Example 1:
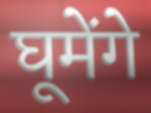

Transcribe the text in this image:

घूमेंगे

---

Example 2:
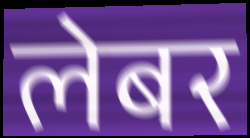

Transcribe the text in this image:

लेबर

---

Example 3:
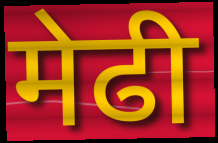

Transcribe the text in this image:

मेढी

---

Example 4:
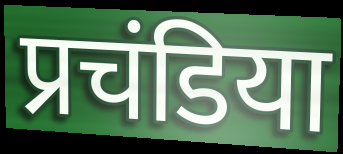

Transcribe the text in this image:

प्रचंडिया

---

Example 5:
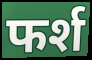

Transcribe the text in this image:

फर्श